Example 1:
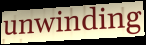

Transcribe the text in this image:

unwinding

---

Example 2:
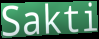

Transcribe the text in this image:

Sakti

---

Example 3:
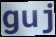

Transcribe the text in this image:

guj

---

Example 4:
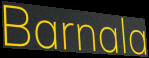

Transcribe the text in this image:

Barnala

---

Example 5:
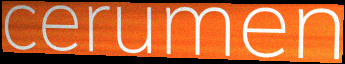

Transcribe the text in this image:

cerumen